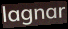
lagnar